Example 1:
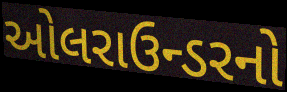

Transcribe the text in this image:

ઓલરાઉન્ડરનો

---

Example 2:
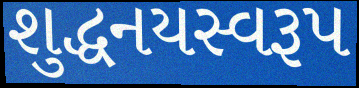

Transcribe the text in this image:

શુદ્ધનયસ્વરૂપ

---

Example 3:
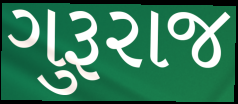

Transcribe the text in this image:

ગુરૂરાજ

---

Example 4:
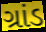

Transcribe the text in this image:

ગ્રાંડ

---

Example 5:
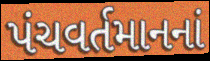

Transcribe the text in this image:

પંચવર્તમાનનાં